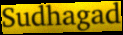
Sudhagad